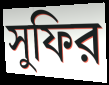
সুফির